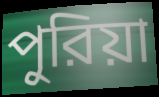
পুরিয়া